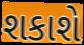
શકાશે